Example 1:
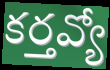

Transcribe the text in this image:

కర్తవ్యో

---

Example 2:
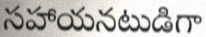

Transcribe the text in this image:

సహాయనటుడిగా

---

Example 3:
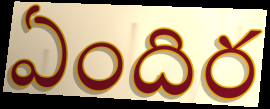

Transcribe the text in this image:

ఏందిర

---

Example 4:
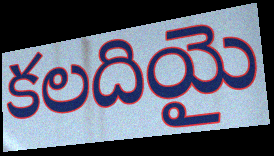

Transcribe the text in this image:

కలదియై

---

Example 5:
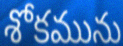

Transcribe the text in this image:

శోకమును